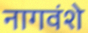
नागवंशे